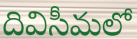
దివిసీమలో